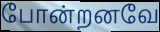
போன்றனவே